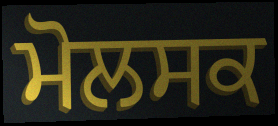
ਮੋਲਸਕ